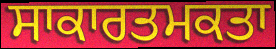
ਸਾਕਾਰਤਮਕਤਾ